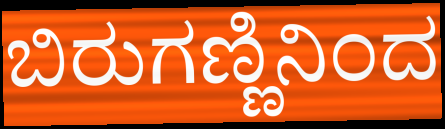
ಬಿರುಗಣ್ಣಿನಿಂದ